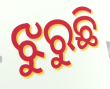
ଝୁରୁଛି